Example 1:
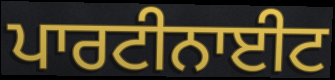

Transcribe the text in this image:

ਪਾਰਟੀਨਾਈਟ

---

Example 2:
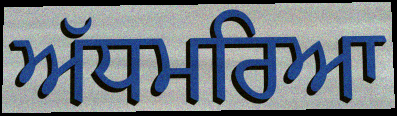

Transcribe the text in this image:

ਅੱਧਮਰਿਆ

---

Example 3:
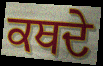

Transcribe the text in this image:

ਕਥਦੇ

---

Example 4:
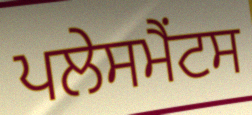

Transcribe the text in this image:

ਪਲੇਸਮੈਂਟਸ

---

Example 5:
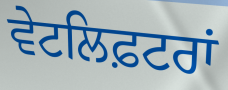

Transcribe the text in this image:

ਵੇਟਲਿਫ਼ਟਰਾਂ